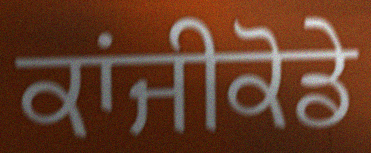
ਕਾਂਜੀਕੋਡੇ